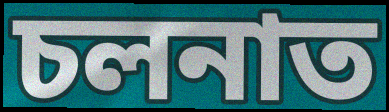
চলনাত